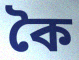
কৈ